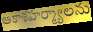
ఆకాశహర్మ్యాలను